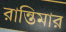
রান্তিমার